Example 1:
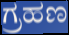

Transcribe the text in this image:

ಗ್ರಹಣ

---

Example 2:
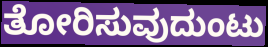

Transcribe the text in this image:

ತೋರಿಸುವುದುಂಟು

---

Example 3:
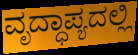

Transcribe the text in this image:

ವೃದ್ಧಾಪ್ಯದಲ್ಲಿ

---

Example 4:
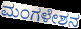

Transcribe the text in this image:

ಮಂಗಳೇಶನ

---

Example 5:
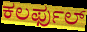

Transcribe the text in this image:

ಕಲರ್ಫುಲ್